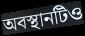
অবস্থানটিও